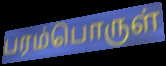
பரம்பொருள்